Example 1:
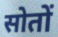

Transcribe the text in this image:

सोतों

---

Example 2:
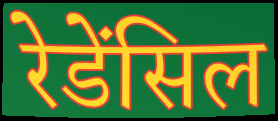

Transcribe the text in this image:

रेडेंसिल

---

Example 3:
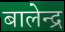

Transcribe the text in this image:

बालेन्द्र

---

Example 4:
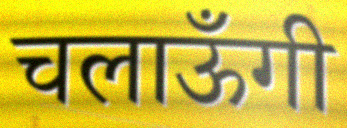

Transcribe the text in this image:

चलाऊँगी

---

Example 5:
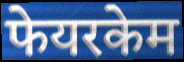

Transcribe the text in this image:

फेयरकेम